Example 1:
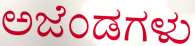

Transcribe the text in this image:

ಅಜೆಂಡಗಳು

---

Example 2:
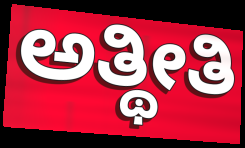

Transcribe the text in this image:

ಅತ್ಥೀತಿ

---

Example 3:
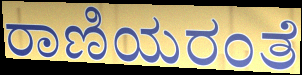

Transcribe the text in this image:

ರಾಣಿಯರಂತೆ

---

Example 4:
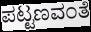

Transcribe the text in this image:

ಪಟ್ಟಣವಂತೆ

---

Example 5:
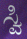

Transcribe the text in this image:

ಸ್ವಿ